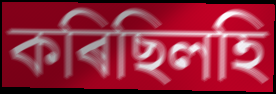
কৰিছিলহি